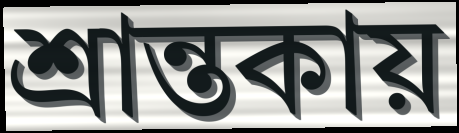
শ্রান্তকায়